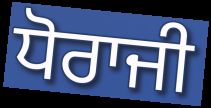
ਧੋਰਾਜੀ